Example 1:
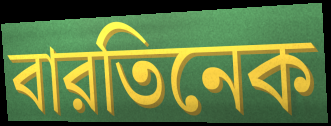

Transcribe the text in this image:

বারতিনেক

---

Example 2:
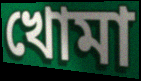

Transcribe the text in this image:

খোমা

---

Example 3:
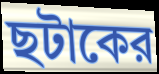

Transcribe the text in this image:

ছটাকের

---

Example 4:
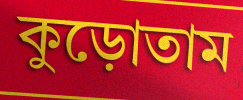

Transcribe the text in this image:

কুড়োতাম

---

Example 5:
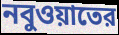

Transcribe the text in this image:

নবুওয়াতের